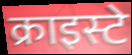
क्राइस्टे